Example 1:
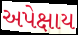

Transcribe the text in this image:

અપેક્ષાય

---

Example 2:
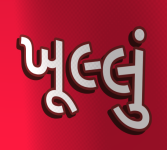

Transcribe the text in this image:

ખૂલ્લું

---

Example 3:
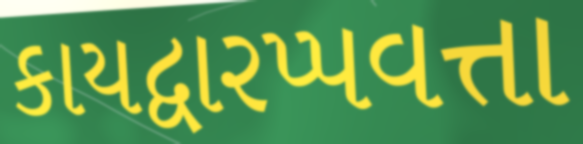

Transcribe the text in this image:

કાયદ્વારપ્પવત્તા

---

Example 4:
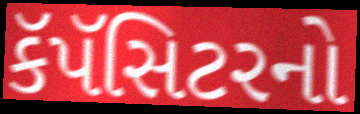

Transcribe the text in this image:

કૅપૅસિટરનો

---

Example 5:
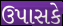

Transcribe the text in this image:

ઉપાસકે